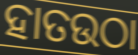
ହାତଉଠା